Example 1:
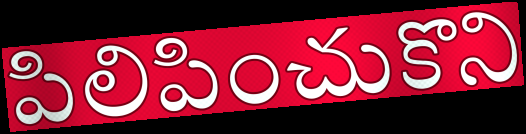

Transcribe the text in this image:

పిలిపించుకొని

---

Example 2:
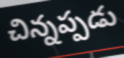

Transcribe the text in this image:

చిన్నప్పడు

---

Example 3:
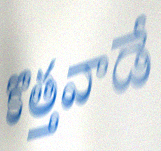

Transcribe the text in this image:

కొత్తవాడే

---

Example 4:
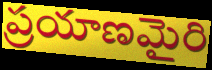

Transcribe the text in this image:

ప్రయాణమైరి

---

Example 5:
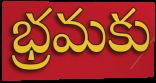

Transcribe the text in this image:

భ్రమకు